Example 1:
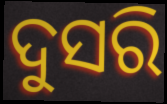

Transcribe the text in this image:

ଦୁସରି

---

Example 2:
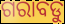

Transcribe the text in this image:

ଗରାବଡୁ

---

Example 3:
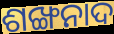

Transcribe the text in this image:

ଶଙ୍ଖନାଦ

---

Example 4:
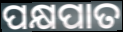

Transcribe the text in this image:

ପକ୍ଷପାତ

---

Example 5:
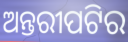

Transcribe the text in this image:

ଅନ୍ତରୀପଟିର